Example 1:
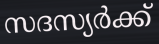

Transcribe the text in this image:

സദസ്യർക്ക്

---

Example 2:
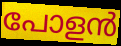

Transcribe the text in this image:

പോളൻ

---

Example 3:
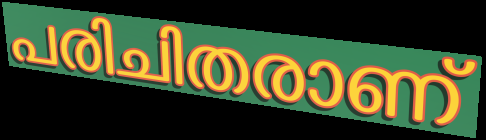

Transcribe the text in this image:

പരിചിതരാണ്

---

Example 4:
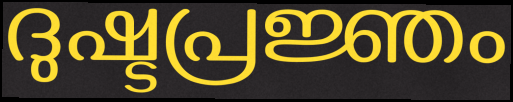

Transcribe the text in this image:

ദുഷ്ടപ്രജ്ഞം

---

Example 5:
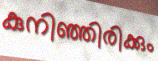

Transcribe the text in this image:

കുനിഞ്ഞിരിക്കും